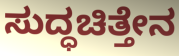
ಸುದ್ಧಚಿತ್ತೇನ